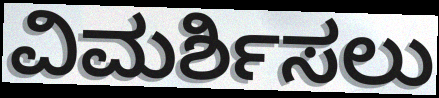
ವಿಮರ್ಶಿಸಲು